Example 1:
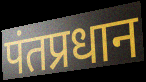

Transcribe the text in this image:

पंतप्रधान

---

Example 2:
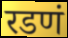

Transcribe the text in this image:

रडणं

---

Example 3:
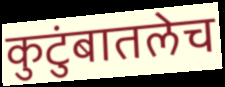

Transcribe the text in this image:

कुटुंबातलेच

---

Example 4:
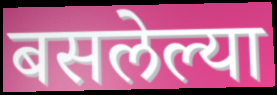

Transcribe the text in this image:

बसलेल्या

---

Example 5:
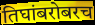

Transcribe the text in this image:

तिघांबरोबरच